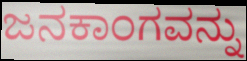
ಜನಕಾಂಗವನ್ನು